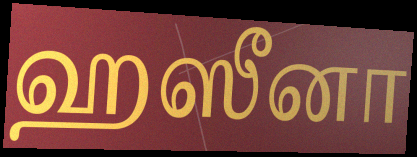
ஹஸீனா